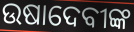
ଉଷାଦେବୀଙ୍କ